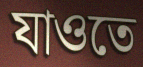
যাওতে